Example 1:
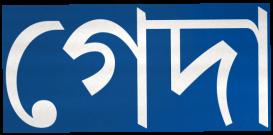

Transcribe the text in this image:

গেদা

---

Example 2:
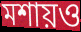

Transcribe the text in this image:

মশায়ও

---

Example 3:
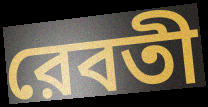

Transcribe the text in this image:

রেবতী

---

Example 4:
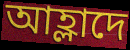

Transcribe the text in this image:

আহ্লাদে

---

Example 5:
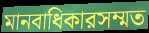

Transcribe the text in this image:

মানবাধিকারসম্মত